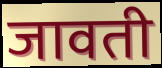
जावती